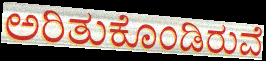
ಅರಿತುಕೊಂಡಿರುವೆ